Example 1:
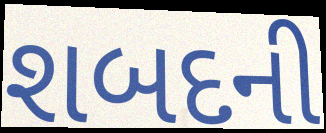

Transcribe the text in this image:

શબદની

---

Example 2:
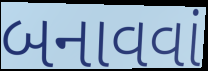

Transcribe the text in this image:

બનાવવાં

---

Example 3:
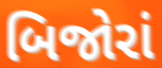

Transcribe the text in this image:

બિજોરાં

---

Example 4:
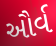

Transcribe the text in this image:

ઔર્વ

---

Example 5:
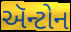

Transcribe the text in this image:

ઍન્ટોન